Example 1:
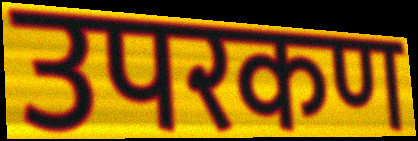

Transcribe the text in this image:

उपरकण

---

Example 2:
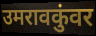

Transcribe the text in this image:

उमरावकुंवर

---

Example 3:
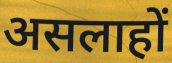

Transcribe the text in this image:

असलाहों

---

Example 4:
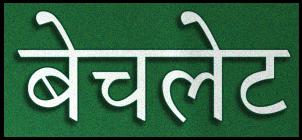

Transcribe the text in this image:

बेचलेट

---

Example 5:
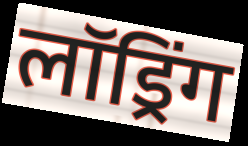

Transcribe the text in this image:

लॉड्रिंग